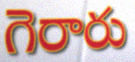
గెరారు